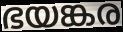
ഭയങ്കര